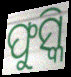
ଫୁସ୍କି